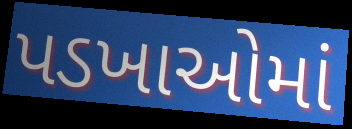
પડખાઓમાં